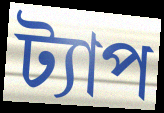
ট্যাপ